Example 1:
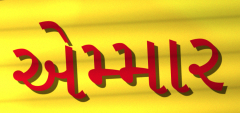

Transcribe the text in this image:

એમ્માર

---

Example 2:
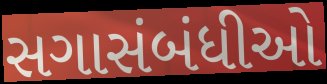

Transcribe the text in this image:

સગાસંબંધીઓ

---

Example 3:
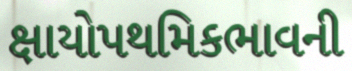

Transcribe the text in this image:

ક્ષાયોપથમિકભાવની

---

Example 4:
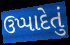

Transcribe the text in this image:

ઉપ્પાદેતું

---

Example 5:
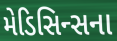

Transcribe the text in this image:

મેડિસિન્સના